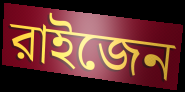
রাইজেন